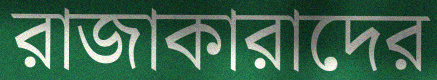
রাজাকারাদের